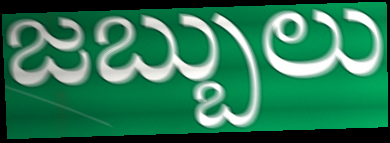
జబ్బులు